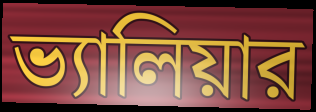
ভ্যালিয়ার